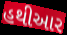
હથીઆર